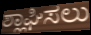
ಶ್ಲಾಘಿಸಲು